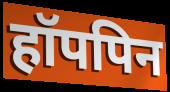
हॉपपिन